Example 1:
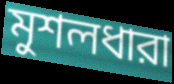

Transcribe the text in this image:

মুশলধারা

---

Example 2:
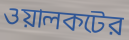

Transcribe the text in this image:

ওয়ালকটের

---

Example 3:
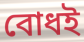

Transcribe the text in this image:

বোধই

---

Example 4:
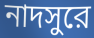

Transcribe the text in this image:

নাদসুরে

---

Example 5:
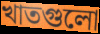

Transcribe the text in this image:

খাতগুলো